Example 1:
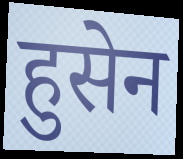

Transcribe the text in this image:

हुसेन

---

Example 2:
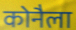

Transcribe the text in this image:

कोनैला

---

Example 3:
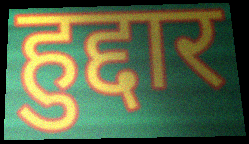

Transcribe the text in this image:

हुद्दार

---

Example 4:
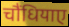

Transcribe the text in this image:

चौंधियाए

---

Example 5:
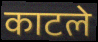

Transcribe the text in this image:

काटले